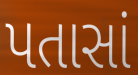
પતાસાં